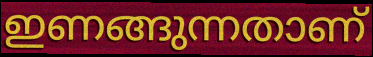
ഇണങ്ങുന്നതാണ്